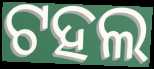
ଟହଲ